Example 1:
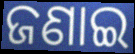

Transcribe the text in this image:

ଜଣାଇ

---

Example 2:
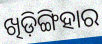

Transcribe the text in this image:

ଖିଡ଼ିଙ୍ଗିହାର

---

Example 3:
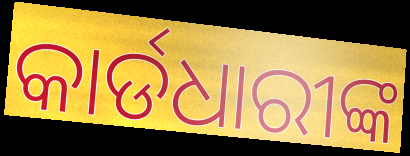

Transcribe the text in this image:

କାର୍ଡଧାରୀଙ୍କ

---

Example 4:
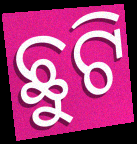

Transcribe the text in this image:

ଛୁଟି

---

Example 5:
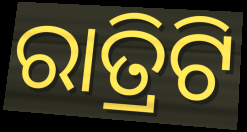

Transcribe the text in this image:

ରାତ୍ରିଟି